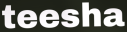
teesha